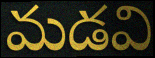
మడవి